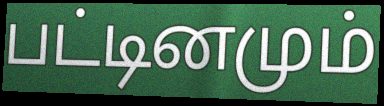
பட்டினமும்